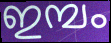
ഇമ്പം